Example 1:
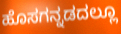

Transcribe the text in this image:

ಹೊಸಗನ್ನಡದಲ್ಲೂ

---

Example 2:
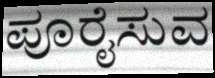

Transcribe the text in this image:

ಪೂರೈಸುವ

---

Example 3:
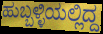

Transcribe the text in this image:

ಹುಬ್ಬಳ್ಳಿಯಲ್ಲಿದ್ದ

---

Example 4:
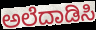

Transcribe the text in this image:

ಅಲೆದಾಡಿಸಿ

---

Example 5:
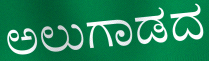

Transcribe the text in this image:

ಅಲುಗಾಡದ